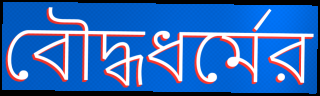
বৌদ্ধধর্মের